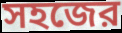
সহজের